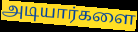
அடியார்களை